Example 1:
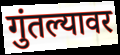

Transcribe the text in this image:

गुंतल्यावर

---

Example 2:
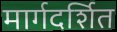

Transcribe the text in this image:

मार्गदर्शित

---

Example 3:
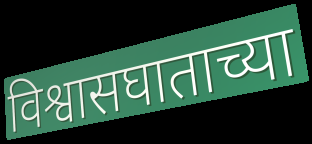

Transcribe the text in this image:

विश्वासघाताच्या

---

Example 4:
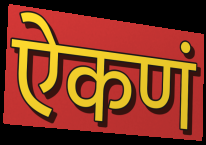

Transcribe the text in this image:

ऐकणं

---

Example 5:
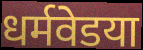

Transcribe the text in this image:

धर्मवेडया